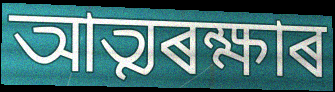
আত্মৰক্ষাৰ